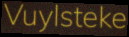
Vuylsteke